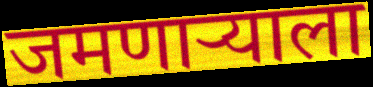
जमणाऱ्याला